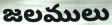
జలములు